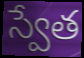
స్వేత